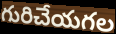
గురిచేయగల